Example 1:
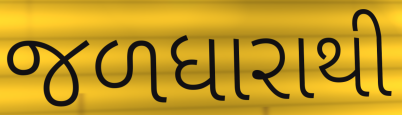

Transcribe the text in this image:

જળધારાથી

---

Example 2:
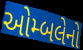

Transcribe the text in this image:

ઓમ્બલેનો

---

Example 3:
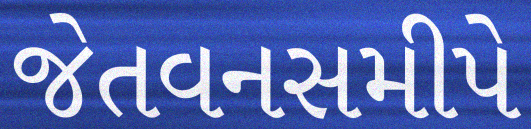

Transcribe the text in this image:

જેતવનસમીપે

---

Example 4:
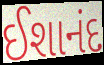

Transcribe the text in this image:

ઈશાનંદ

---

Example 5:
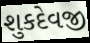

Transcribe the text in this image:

શુકદેવજી